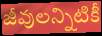
జీవులన్నిటికీ